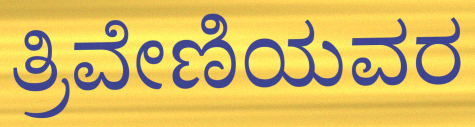
ತ್ರಿವೇಣಿಯವರ